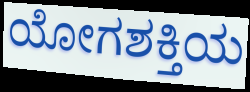
ಯೋಗಶಕ್ತಿಯ